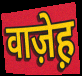
वाज़ेह़